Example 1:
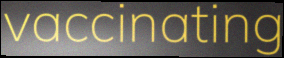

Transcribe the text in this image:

vaccinating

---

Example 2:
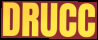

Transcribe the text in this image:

DRUCC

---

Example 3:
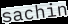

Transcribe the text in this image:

sachin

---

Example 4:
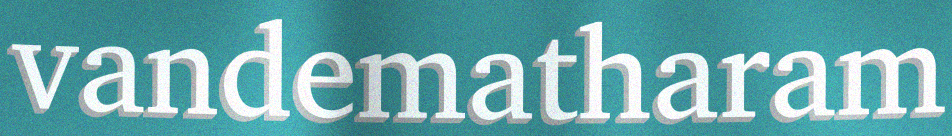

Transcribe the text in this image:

vandematharam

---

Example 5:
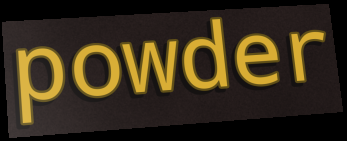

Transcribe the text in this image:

powder